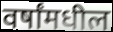
वर्षांमधील